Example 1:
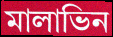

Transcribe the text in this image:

মালাভিন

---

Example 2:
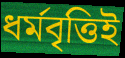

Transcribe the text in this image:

ধর্মবৃত্তিই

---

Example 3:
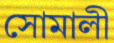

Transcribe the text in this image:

সোমালী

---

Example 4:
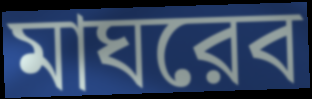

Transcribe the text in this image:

মাঘরেব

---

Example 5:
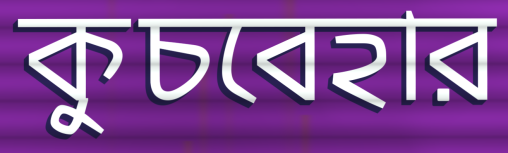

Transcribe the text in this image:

কুচবেহার